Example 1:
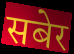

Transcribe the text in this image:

सबेर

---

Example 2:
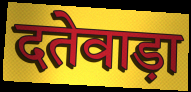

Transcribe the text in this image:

दतेवाड़ा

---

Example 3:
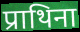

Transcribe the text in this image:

प्राथिना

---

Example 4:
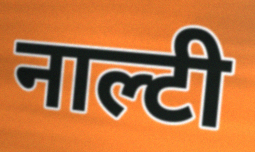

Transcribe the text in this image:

नाल्टी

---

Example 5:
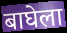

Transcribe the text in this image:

बाघेला